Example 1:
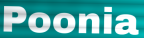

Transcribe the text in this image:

Poonia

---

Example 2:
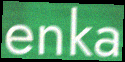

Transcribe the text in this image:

enka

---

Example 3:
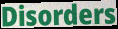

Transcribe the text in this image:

Disorders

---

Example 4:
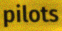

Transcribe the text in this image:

pilots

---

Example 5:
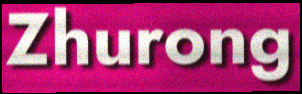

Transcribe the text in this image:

Zhurong